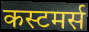
कस्‍टमर्स